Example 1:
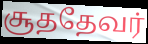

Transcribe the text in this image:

சூததேவர்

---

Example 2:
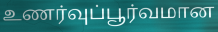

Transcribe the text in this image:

உணர்வுப்பூர்வமான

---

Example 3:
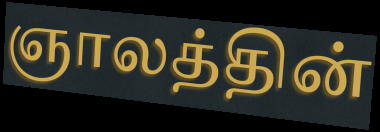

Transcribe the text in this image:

ஞாலத்தின்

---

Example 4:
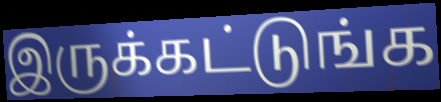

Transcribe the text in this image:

இருக்கட்டுங்க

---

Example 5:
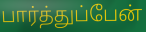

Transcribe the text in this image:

பார்த்துப்பேன்